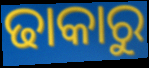
ଢାକାରୁ